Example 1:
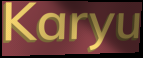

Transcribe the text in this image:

Karyu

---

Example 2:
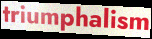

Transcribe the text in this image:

triumphalism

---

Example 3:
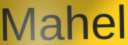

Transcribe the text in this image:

Mahel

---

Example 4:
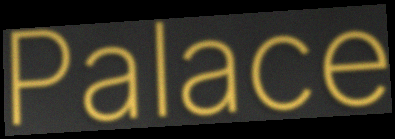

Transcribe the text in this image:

Palace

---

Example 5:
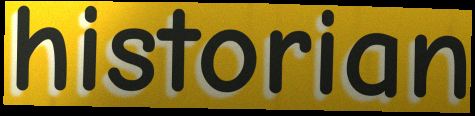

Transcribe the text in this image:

historian